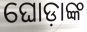
ଘୋଡ଼ାଙ୍କ